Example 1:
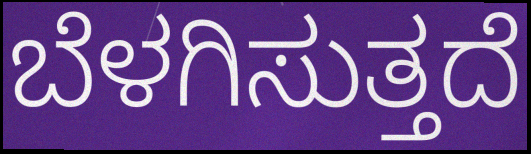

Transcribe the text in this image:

ಬೆಳಗಿಸುತ್ತದೆ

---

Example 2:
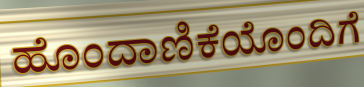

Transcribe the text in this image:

ಹೊಂದಾಣಿಕೆಯೊಂದಿಗೆ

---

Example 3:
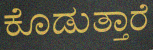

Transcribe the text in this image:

ಕೊಡುತ್ತಾರೆ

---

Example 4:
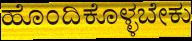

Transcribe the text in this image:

ಹೊಂದಿಕೊಳ್ಳಬೇಕು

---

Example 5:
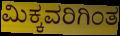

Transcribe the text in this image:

ಮಿಕ್ಕವರಿಗಿಂತ